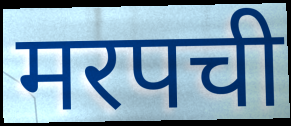
मरपची